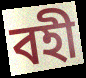
বহী